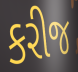
કરીજ